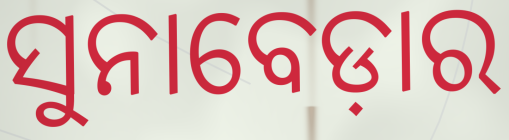
ସୁନାବେଡ଼ାର